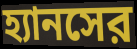
হ্যানসের